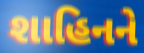
શાહિનને